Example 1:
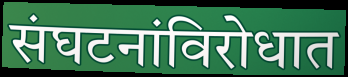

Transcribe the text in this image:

संघटनांविरोधात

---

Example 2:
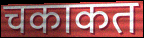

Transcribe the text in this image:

चकाकत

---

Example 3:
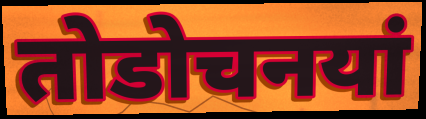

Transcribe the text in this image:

तोडोचनयां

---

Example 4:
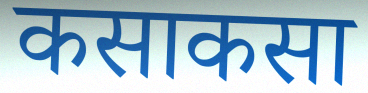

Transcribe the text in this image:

कसाकसा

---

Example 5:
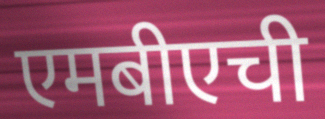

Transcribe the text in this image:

एमबीएची